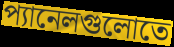
প্যানেলগুলোতে